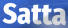
Satta